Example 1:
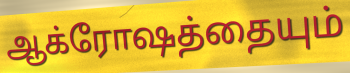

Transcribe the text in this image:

ஆக்ரோஷத்தையும்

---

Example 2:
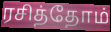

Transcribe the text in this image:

ரசித்தோம்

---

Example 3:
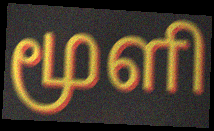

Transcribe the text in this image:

மூளி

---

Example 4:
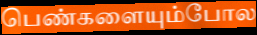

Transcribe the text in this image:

பெண்களையும்போல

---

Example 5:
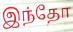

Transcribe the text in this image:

இந்தோ